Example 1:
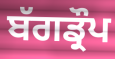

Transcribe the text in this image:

ਬੱਗਡ੍ਰੌਪ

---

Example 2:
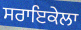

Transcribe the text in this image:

ਸਰਾਇਕੇਲਾ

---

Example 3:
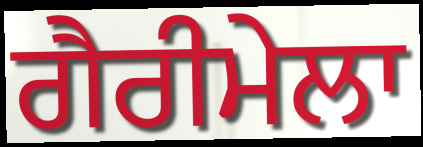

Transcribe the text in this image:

ਗੈਰੀਮੇਲਾ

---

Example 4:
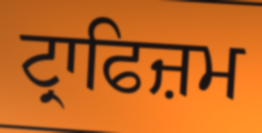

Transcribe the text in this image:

ਟ੍ਰਾਫਿਜ਼ਮ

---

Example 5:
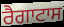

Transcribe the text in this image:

ਰੈਗਾਟਾਸ